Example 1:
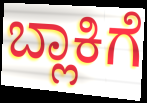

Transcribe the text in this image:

ಬ್ಲಾಕಿಗೆ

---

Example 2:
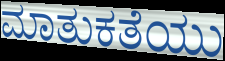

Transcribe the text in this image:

ಮಾತುಕತೆಯು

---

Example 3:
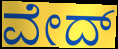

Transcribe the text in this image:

ವೇದ್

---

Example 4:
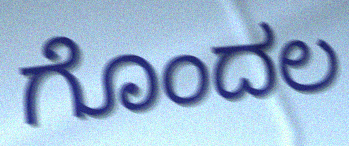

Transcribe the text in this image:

ಗೊಂದಲ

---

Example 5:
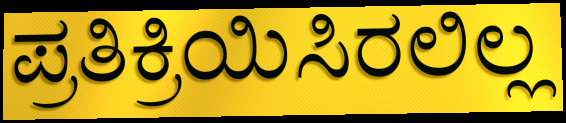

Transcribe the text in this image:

ಪ್ರತಿಕ್ರಿಯಿಸಿರಲಿಲ್ಲ